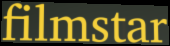
filmstar